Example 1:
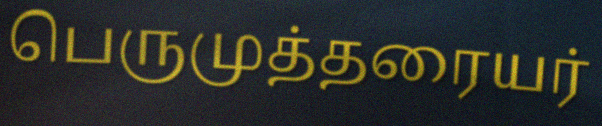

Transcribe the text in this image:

பெருமுத்தரையர்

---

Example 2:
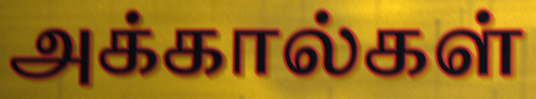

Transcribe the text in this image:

அக்கால்கள்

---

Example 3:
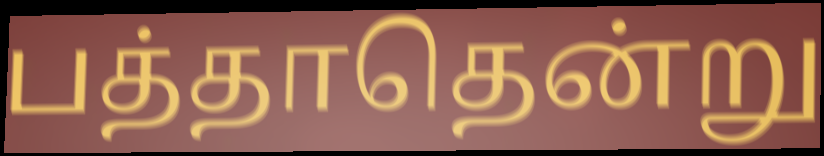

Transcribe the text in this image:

பத்தாதென்று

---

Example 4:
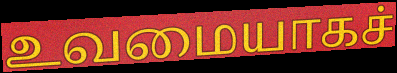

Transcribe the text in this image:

உவமையாகச்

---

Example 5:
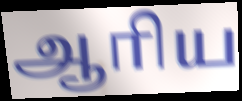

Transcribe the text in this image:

ஆரிய